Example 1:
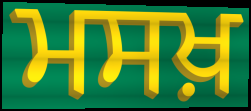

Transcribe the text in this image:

ਮਸਖ਼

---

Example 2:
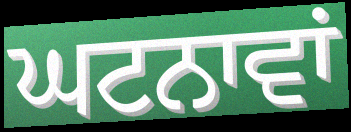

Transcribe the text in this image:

ਘਟਨਾਵਾਂ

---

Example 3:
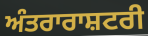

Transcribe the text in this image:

ਅੰਤਰਾਰਾਸ਼ਟਰੀ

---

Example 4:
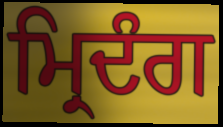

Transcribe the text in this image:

ਮ੍ਰਿਦੰਗ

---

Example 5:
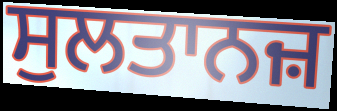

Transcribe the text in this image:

ਸੁਲਤਾਨਜ਼